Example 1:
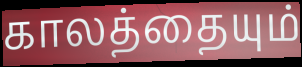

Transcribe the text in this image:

காலத்தையும்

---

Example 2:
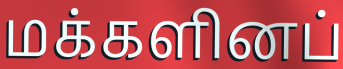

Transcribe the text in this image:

மக்களினப்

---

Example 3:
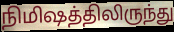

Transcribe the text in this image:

நிமிஷத்திலிருந்து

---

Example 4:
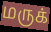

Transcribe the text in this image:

மருக்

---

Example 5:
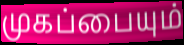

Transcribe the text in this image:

முகப்பையும்